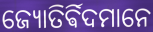
ଜ୍ୟୋତିର୍ଵିଦମାନେ